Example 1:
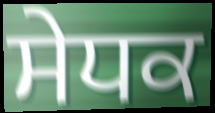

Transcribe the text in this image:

ਸੇਧਕ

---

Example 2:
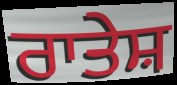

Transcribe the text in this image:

ਰਾਤੇਸ਼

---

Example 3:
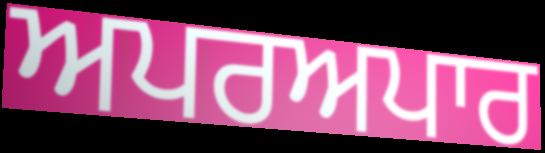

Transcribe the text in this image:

ਅਪਰਅਪਾਰ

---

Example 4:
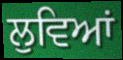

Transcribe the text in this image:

ਲੁਵਿਆਂ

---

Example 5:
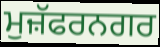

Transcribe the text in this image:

ਮੁਜ਼ੱਫਰਨਗਰ